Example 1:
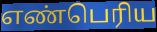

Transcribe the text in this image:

எண்பெரிய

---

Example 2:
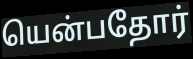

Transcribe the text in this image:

யென்பதோர்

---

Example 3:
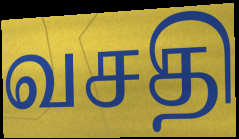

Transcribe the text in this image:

வசதி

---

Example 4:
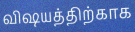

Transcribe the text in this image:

விஷயத்திற்காக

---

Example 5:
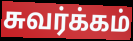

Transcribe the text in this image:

சுவர்க்கம்